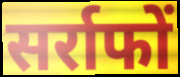
सर्राफों